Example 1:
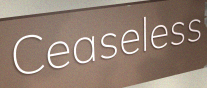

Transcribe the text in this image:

Ceaseless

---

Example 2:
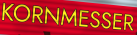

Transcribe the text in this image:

KORNMESSER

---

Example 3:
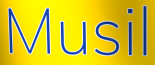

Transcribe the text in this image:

Musil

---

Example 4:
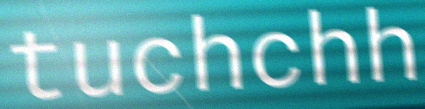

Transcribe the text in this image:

tuchchh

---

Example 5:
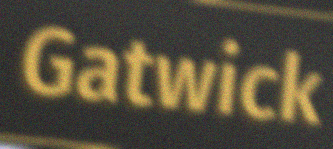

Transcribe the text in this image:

Gatwick